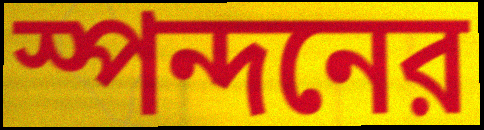
স্পন্দনের